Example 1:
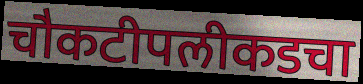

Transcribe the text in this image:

चौकटीपलीकडचा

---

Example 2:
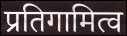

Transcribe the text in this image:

प्रतिगामित्व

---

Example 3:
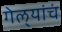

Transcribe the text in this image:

गेल्यांचं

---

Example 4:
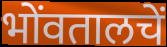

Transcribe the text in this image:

भोंवतालचें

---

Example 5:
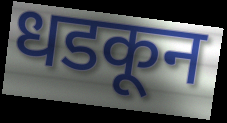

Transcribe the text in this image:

धडकून